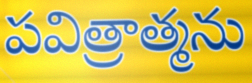
పవిత్రాత్మను